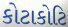
કોટાકોટિ